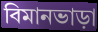
বিমানভাড়া